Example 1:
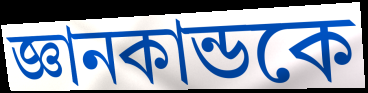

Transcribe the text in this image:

জ্ঞানকান্ডকে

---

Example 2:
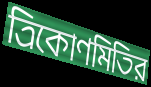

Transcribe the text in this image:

ত্রিকোণমিতির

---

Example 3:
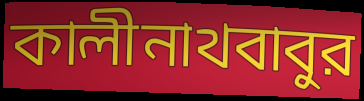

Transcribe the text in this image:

কালীনাথবাবুর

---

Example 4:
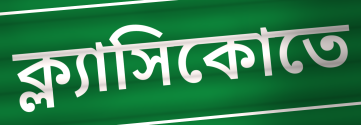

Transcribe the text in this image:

ক্ল্যাসিকোতে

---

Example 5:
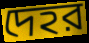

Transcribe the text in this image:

দেহর